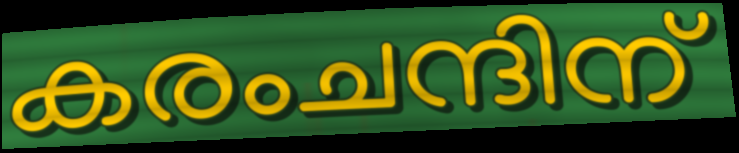
കരംചന്ദിന്